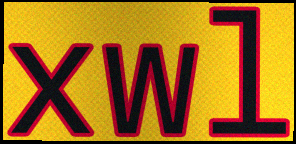
xwl